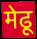
मेढू